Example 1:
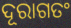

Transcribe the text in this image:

ଦୂରାଗତଂ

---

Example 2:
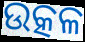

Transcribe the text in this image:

ଉତ୍କଳ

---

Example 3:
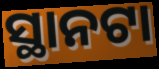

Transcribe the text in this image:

ସ୍ଥାନଟା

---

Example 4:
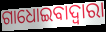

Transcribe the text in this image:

ଗାଧୋଇବାଦ୍ଵାରା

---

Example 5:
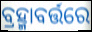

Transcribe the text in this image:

ବ୍ରହ୍ମାବର୍ତ୍ତରେ